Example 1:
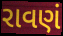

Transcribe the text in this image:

રાવણં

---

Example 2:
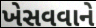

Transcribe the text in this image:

ખેસવવાને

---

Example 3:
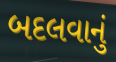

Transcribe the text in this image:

બદલવાનું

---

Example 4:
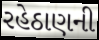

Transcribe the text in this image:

રહેઠાણની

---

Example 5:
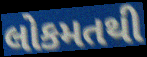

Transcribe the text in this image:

લોકમતથી